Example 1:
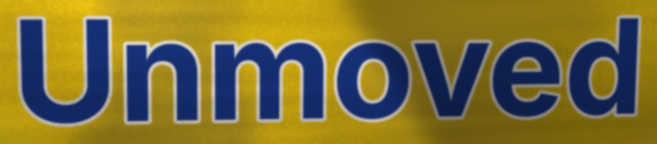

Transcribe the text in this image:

Unmoved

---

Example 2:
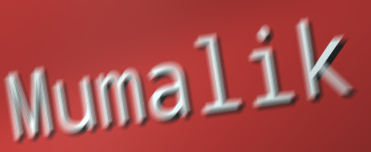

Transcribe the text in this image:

Mumalik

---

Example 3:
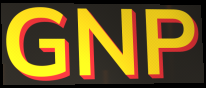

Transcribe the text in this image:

GNP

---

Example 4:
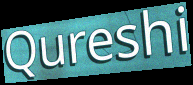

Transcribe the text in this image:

Qureshi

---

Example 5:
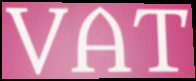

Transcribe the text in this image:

VAT